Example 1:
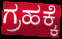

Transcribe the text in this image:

ಗ್ರಹಕ್ಕೆ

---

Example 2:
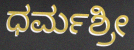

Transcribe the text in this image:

ಧರ್ಮಶ್ರೀ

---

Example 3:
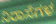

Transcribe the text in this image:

ನಿರಾಸೆಗಳ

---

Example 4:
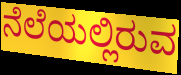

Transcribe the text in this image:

ನೆಲೆಯಲ್ಲಿರುವ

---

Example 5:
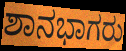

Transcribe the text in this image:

ಶಾನಭಾಗರು